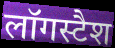
लॉगस्टैश